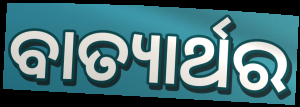
ବାତ୍ୟାର୍ଥର